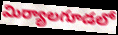
మిర్యాలగూడలో